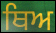
ਥਿਅ